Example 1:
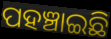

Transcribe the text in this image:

ପହଞ୍ଚାଇଛି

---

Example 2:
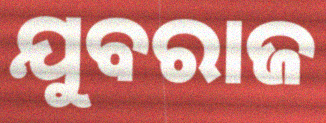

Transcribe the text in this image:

ଯୁବରାଜ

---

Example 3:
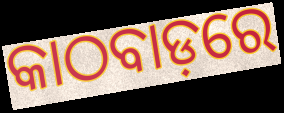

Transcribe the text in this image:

କାଠବାଡ଼ରେ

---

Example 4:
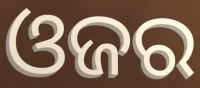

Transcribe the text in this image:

ଓଜର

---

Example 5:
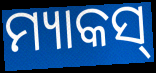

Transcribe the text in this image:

ମ୍ୟାକସ୍